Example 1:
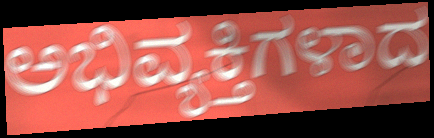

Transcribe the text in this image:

ಅಭಿವ್ಯಕ್ತಿಗಳಾದ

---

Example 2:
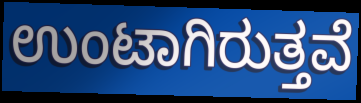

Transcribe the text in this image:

ಉಂಟಾಗಿರುತ್ತವೆ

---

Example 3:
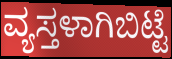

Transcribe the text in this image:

ವ್ಯಸ್ತಳಾಗಿಬಿಟ್ಟೆ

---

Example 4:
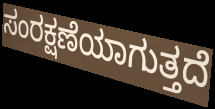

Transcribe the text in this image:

ಸಂರಕ್ಷಣೆಯಾಗುತ್ತದೆ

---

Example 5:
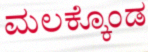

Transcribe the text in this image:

ಮಲಕ್ಕೊಂಡ